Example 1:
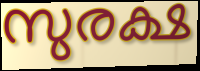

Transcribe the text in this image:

സുരക്ഷ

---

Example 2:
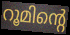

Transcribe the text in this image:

റൂമിന്റെ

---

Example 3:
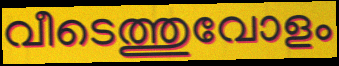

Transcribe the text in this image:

വീടെത്തുവോളം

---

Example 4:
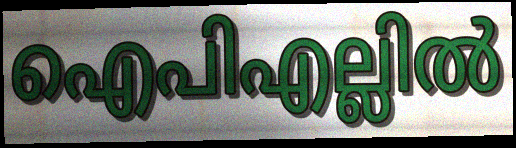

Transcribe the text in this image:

ഐപിഎല്ലിൽ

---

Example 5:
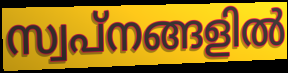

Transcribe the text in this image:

സ്വപ്നങ്ങളിൽ